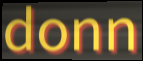
donn